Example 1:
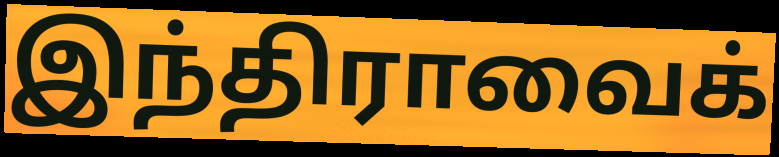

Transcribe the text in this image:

இந்திராவைக்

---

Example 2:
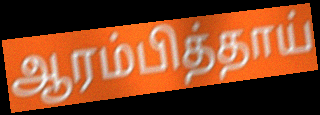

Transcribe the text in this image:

ஆரம்பித்தாய்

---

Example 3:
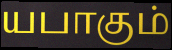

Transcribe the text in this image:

யபாகும்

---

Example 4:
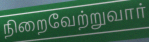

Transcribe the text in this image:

நிறைவேற்றுவார்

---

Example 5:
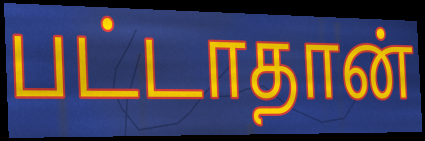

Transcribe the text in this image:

பட்டாதான்